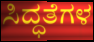
ಸಿದ್ಧತೆಗಳ